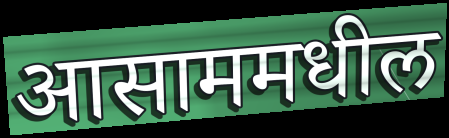
आसाममधील